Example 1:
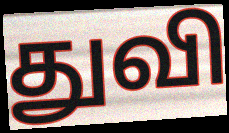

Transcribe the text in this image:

துவி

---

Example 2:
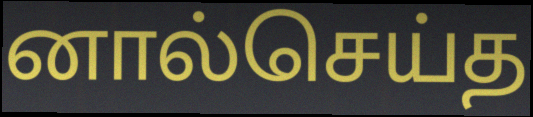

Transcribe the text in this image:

னால்செய்த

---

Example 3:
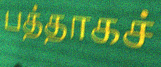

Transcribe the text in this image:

பத்தாகச்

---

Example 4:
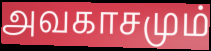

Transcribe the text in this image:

அவகாசமும்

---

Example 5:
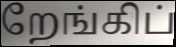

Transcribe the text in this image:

றேங்கிப்